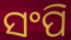
ସଂପି